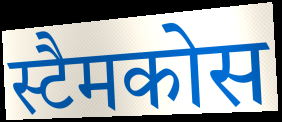
स्टैमकोस